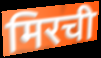
मिरची